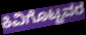
ಕಿವಿಗೊಟ್ಟವರ